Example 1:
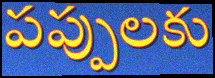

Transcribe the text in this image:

పప్పులకు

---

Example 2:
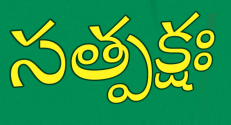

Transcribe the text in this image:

సత్పక్షః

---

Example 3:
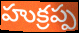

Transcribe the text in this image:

హుక్రప్ప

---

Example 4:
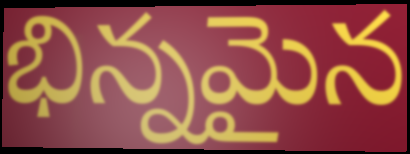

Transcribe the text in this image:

భిన్నమైన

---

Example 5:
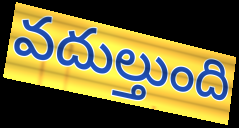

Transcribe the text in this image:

వదుల్తుంది